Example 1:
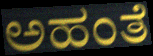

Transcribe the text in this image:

ಅಹಂತೆ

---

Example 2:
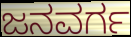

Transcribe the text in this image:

ಜನವರ್ಗ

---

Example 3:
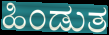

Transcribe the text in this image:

ಹಿಂಡುತ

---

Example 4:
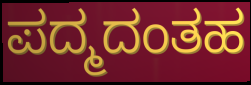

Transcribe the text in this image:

ಪದ್ಮದಂತಹ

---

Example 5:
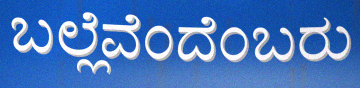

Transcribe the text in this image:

ಬಲ್ಲೆವೆಂದೆಂಬರು